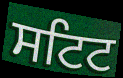
ਸਟਿਟ